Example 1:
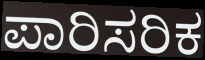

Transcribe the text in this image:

ಪಾರಿಸರಿಕ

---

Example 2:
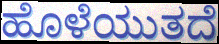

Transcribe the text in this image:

ಹೊಳೆಯುತದೆ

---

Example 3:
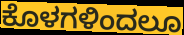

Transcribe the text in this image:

ಕೊಳಗಳಿಂದಲೂ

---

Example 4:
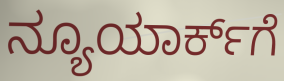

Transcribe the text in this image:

ನ್ಯೂಯಾರ್ಕ್‌ಗೆ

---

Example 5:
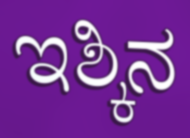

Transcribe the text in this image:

ಇಶ್ಕಿನ